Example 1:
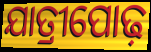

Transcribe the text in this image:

ଯାତ୍ରୀପୋଢ଼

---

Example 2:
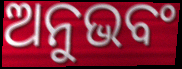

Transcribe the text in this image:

ଅନୁଭବଂ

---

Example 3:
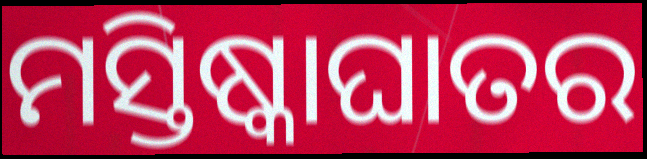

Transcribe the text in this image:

ମସ୍ତିଷ୍କାଘାତର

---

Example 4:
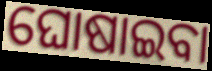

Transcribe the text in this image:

ଘୋଷାଇବା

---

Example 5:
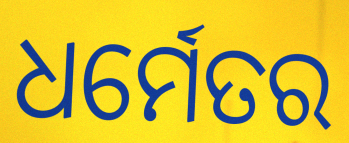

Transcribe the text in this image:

ଧର୍ମେତର